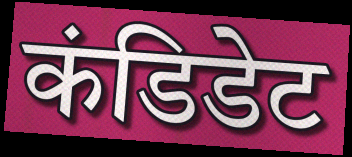
कंडिडेट